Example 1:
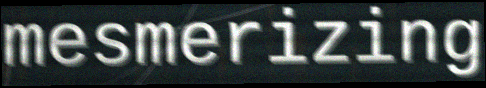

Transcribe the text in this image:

mesmerizing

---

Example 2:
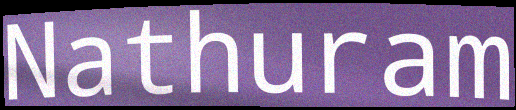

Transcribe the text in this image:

Nathuram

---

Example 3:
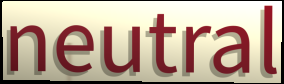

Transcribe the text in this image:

neutral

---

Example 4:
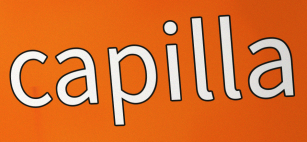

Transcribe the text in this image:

capilla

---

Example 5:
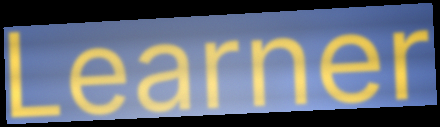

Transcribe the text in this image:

Learner